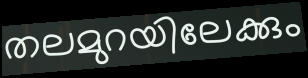
തലമുറയിലേക്കും